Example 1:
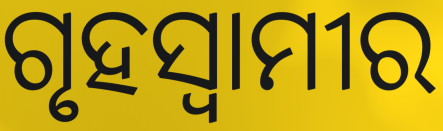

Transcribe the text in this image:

ଗୃହସ୍ୱାମୀର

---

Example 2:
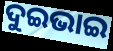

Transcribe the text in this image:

ଦୁଇଭାଇ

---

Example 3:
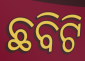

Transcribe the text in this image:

ଛବିଟି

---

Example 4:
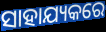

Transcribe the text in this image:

ସାହାଯ୍ୟକରେ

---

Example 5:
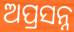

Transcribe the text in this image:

ଅପ୍ରସନ୍ନ